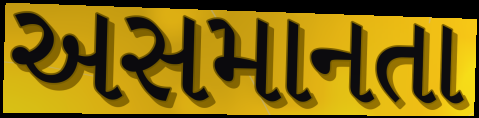
અસમાનતા